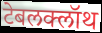
टेबलक्लॉथ